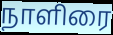
நாளிரை